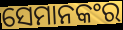
ସେମାନକଂର